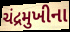
ચંદ્રમુખીના